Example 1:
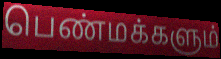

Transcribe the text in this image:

பெண்மக்களும்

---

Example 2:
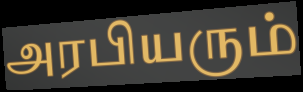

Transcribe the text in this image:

அரபியரும்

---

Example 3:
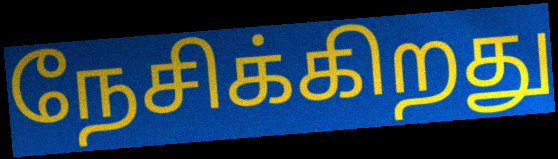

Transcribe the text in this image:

நேசிக்கிறது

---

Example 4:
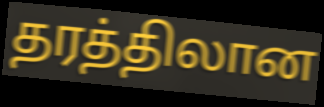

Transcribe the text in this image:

தரத்திலான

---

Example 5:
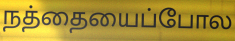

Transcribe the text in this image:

நத்தையைப்போல